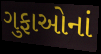
ગુફાઓનાં